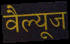
वैल्यूज